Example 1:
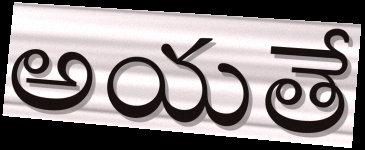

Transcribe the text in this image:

అయతే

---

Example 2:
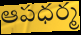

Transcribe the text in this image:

ఆపధర్మ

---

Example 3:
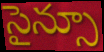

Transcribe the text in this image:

సైన్సూ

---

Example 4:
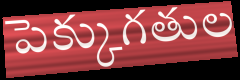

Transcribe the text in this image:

పెక్కుగతుల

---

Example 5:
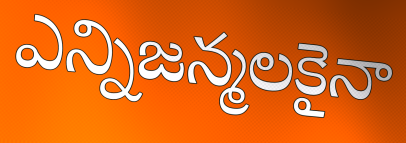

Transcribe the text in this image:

ఎన్నిజన్మలకైనా